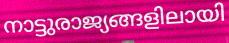
നാട്ടുരാജ്യങ്ങളിലായി